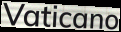
Vaticano